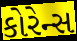
કોરેન્સ